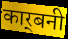
कार्बनी